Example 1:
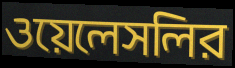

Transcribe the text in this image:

ওয়েলেসলির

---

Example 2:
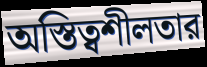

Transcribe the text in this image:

অস্তিত্বশীলতার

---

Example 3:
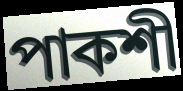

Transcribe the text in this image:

পাকশী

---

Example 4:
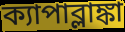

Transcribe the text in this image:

ক্যাপাব্লাঙ্কা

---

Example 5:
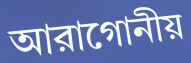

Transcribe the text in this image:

আরাগোনীয়